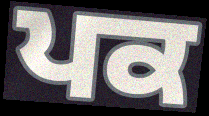
ਪਕ